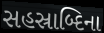
સહસ્રાબ્દિના